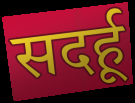
सदर्हू